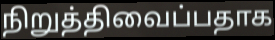
நிறுத்திவைப்பதாக